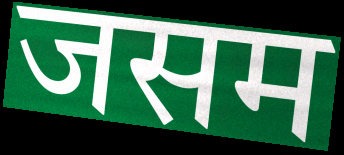
जसम